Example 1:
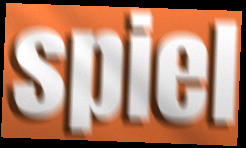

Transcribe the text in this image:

spiel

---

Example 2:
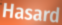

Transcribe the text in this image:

Hasard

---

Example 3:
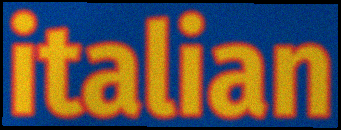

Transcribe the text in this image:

italian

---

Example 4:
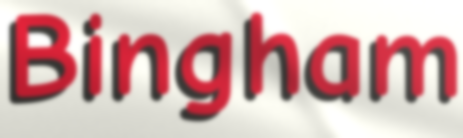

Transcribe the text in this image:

Bingham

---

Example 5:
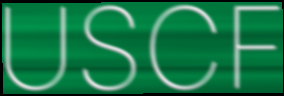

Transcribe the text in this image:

USCF